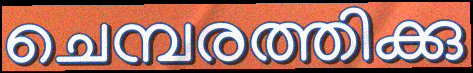
ചെമ്പരത്തിക്കു